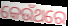
କେଉଁଥରେ